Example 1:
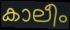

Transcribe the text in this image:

കാലീം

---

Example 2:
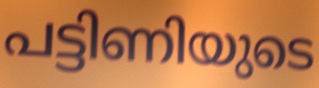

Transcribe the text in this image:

പട്ടിണിയുടെ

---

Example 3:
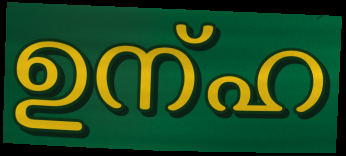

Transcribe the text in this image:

ഉന്ഹ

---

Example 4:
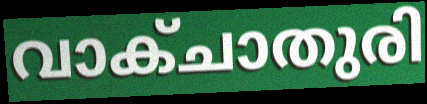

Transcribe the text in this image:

വാക്ചാതുരി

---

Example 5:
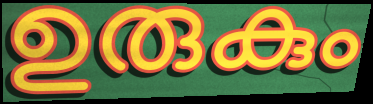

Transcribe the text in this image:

ഉരുകും